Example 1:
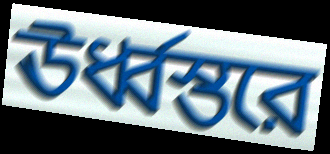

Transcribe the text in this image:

ঊর্ধ্বস্তরে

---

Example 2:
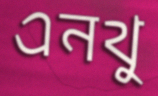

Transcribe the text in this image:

এনথু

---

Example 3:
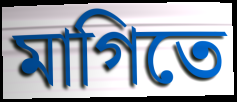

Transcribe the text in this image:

মাগিতে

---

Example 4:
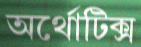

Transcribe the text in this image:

অর্থোটিক্স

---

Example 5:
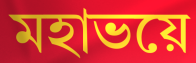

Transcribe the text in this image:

মহাভয়ে